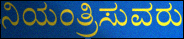
ನಿಯಂತ್ರಿಸುವರು